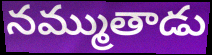
నమ్ముతాడు